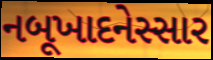
નબૂખાદનેસ્સાર